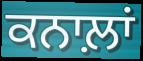
ਕਨਾਲ਼ਾਂ